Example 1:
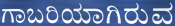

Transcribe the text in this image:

ಗಾಬರಿಯಾಗಿರುವ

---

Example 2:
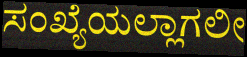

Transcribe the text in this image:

ಸಂಖ್ಯೆಯಲ್ಲಾಗಲೀ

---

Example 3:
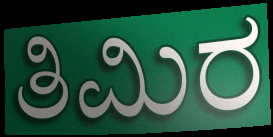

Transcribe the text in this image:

ತಿಮಿರ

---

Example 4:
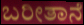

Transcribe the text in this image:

ಬರೀತಾನೆ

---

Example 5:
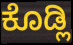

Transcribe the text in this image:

ಕೊಡ್ಲಿ